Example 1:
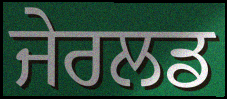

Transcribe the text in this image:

ਜੇਰਲਡ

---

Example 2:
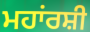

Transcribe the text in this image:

ਮਹਾਂਰਸ਼ੀ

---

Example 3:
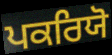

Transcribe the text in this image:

ਪਕਰਿਯੋ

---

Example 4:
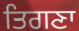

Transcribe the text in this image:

ਤਿਗਣਾ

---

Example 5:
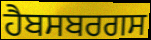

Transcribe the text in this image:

ਹੈਬਸਬਰਗਸ